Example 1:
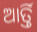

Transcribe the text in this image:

ଆର୍ତ୍ତି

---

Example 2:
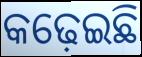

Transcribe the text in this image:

କଢ଼େଇଛି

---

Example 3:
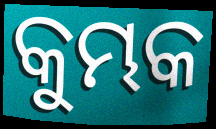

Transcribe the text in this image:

କୁମ୍ଭକ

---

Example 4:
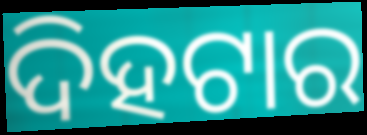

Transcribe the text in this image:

ଦିହଟାର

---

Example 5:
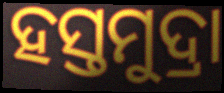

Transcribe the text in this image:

ହସ୍ତମୁଦ୍ରା